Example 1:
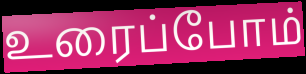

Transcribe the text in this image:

உரைப்போம்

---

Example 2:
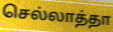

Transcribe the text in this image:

செல்லாத்தா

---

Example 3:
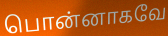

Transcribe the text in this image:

பொன்னாகவே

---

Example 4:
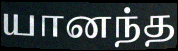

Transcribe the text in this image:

யானந்த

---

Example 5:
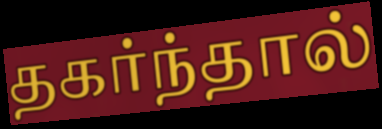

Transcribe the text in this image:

தகர்ந்தால்